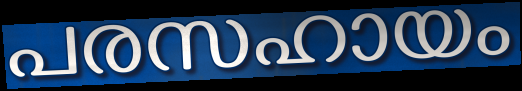
പരസഹായം